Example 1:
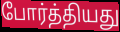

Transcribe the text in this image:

போர்த்தியது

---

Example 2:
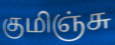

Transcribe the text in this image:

குமிஞ்சு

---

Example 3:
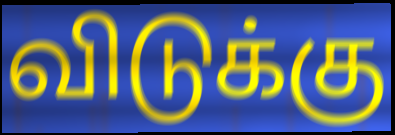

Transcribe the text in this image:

விடுக்கு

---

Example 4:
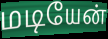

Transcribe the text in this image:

மடியேன்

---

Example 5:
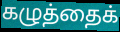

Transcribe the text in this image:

கழுத்தைக்